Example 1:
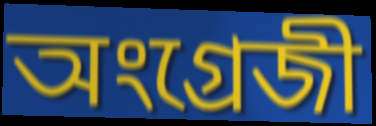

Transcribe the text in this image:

অংগ্ৰেজী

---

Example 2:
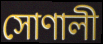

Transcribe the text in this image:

সোণালী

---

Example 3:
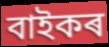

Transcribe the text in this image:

বাইকৰ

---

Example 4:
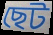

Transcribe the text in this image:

ছেট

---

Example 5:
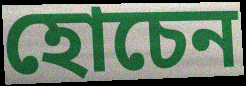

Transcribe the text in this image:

হোচেন